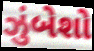
ઝુંબેશો